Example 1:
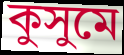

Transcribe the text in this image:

কুসুমে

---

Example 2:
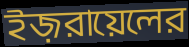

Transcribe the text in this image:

ইজ়রায়েলের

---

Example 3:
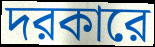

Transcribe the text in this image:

দরকারে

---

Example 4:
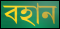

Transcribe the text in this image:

বহান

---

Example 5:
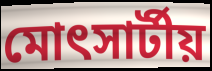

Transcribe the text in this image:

মোৎসার্টীয়